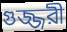
গুজ্জরী